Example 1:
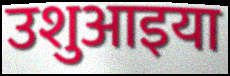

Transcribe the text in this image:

उशुआइया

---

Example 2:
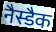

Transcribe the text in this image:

नैस्डैक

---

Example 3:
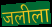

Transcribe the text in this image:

जलीला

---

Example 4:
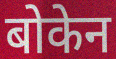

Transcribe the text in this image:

बोकेन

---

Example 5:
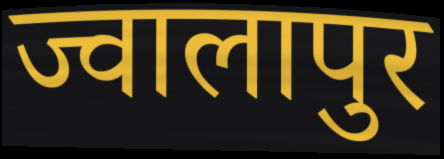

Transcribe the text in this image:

ज्वालापुर